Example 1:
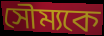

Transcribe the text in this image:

সৌম্যকে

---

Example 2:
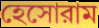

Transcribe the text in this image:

হেসোরাম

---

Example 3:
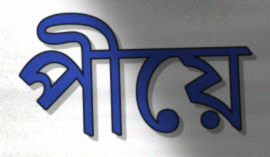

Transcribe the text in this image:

পীয়ে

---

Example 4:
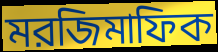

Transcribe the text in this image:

মরজিমাফিক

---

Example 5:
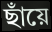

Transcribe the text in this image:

ছাঁয়ে